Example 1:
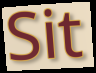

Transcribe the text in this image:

Sit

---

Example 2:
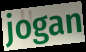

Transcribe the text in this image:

jogan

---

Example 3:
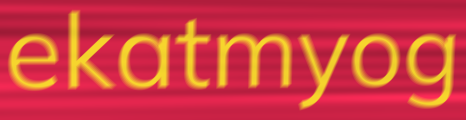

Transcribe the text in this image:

ekatmyog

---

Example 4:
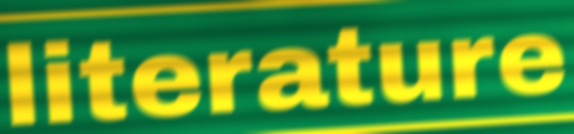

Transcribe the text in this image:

literature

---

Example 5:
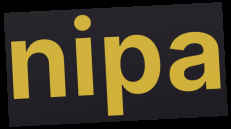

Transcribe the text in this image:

nipa